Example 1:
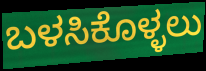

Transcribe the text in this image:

ಬಳಸಿಕೊಳ್ಳಲು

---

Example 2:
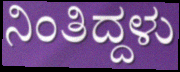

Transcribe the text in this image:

ನಿಂತಿದ್ದಳು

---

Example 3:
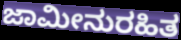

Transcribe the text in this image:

ಜಾಮೀನುರಹಿತ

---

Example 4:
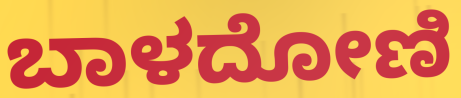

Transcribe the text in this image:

ಬಾಳದೋಣಿ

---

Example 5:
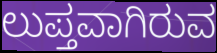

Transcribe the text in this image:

ಲುಪ್ತವಾಗಿರುವ